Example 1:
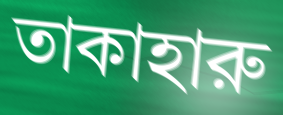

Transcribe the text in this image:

তাকাহারু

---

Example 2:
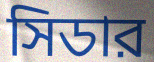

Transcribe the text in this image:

সিডার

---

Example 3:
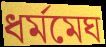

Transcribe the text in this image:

ধর্মমেঘ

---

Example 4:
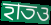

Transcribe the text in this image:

হাতও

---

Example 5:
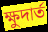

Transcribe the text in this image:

ক্ষুদার্ত